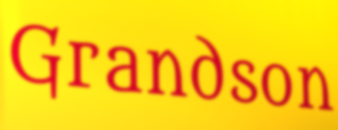
Grandson